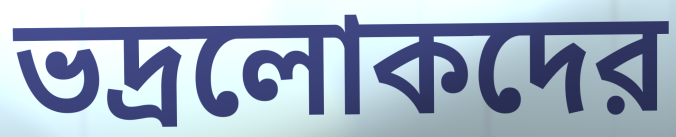
ভদ্রলোকদের